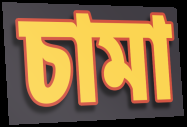
চামা